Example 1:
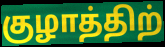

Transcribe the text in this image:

குழாத்திற்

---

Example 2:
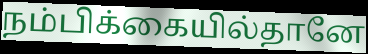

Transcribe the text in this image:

நம்பிக்கையில்தானே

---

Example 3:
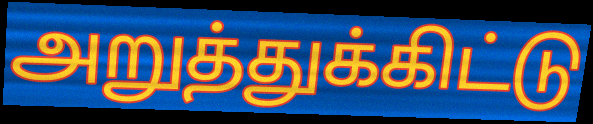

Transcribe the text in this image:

அறுத்துக்கிட்டு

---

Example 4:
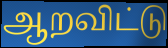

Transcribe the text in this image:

ஆறவிட்டு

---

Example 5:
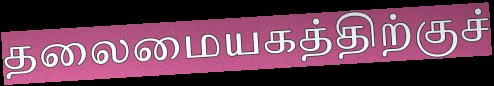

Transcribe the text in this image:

தலைமையகத்திற்குச்